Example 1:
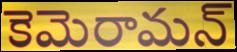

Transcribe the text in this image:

కెమెరామన్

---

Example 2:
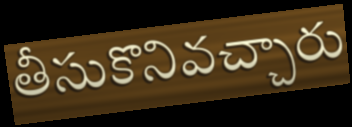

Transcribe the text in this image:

తీసుకొనివచ్చారు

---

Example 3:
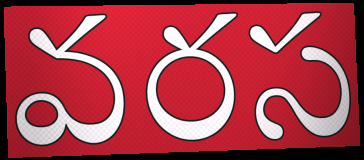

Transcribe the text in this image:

వరస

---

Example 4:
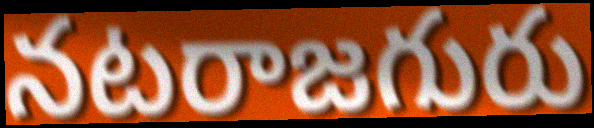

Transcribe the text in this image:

నటరాజగురు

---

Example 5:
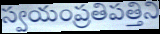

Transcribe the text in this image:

స్వయంప్రతిపత్తిని